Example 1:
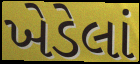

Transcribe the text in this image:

ખેડેલાં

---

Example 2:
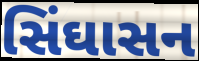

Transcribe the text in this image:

સિંઘાસન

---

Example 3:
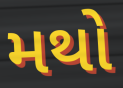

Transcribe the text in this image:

મથો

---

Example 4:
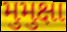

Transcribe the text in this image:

મુમુક્ષા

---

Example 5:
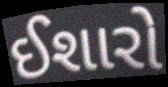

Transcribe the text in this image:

ઈશારો